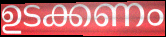
ഉടക്കണം